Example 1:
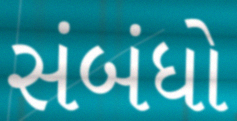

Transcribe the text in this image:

સંબંધો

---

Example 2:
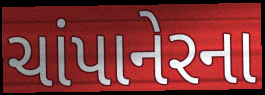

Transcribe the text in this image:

ચાંપાનેરના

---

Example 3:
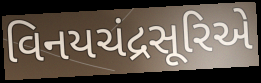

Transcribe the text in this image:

વિનયચંદ્રસૂરિએ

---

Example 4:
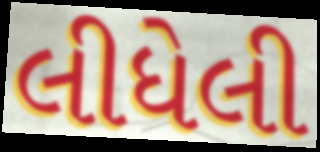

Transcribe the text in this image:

લીધેલી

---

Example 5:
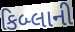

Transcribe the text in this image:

કિબ્લાની